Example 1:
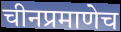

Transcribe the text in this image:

चीनप्रमाणेच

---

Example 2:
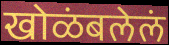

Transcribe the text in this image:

खोळंबलेलं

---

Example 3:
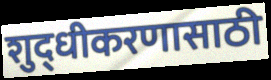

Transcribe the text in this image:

शुद्धीकरणासाठी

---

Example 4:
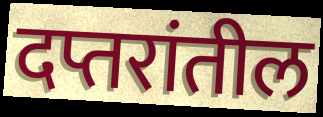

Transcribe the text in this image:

दप्तरांतील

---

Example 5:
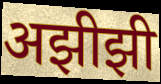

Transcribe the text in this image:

अझीझी